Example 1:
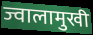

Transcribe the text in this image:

ज्वालामुखी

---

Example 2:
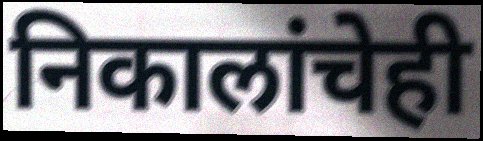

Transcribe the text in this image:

निकालांचेही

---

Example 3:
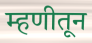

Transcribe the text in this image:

म्हणीतून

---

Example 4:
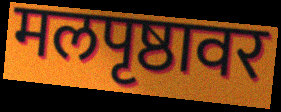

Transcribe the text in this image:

मलपृष्ठावर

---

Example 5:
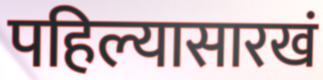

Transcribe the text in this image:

पहिल्यासारखं